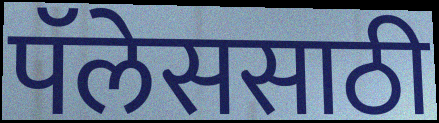
पॅलेससाठी